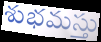
శుభమస్తు